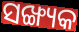
ସଙ୍ଖ୍ୟକ